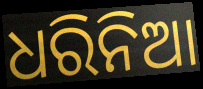
ଧରିନିଆ